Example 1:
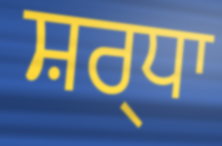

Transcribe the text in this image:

ਸ਼ਰ੍ਧਾ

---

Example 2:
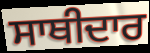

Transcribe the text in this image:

ਸਾਥੀਦਾਰ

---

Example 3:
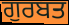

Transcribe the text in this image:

ਗੁਰਬਤ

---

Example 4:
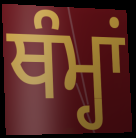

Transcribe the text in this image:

ਥੰਮ੍ਹਾਂ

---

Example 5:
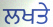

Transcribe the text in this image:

ਲਖਤੇ